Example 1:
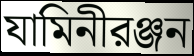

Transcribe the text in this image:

যামিনীরঞ্জন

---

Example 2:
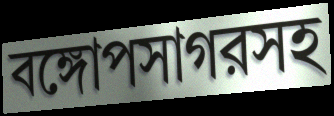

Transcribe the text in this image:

বঙ্গোপসাগরসহ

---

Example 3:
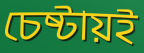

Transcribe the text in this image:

চেষ্টায়ই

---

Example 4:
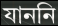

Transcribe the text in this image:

যাননি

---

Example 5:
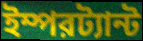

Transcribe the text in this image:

ইম্পরট্যান্ট